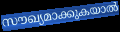
സൗഖ്യമാക്കുകയാൽ